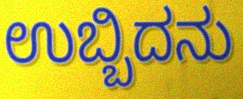
ಉಬ್ಬಿದನು